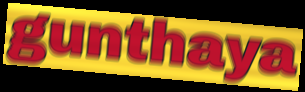
gunthaya